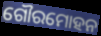
ଗୌରମୋହନ